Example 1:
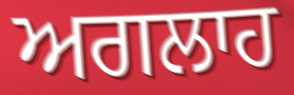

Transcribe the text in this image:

ਅਗਲਾਹ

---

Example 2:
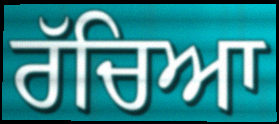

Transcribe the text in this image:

ਰੱਚਿਆ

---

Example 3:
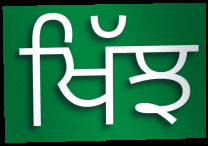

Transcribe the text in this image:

ਖਿੱਝ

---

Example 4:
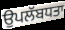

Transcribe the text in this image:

ਉਪਲੱਬਧਤਾ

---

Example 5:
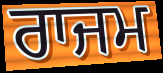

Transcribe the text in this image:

ਰਾਜਮ